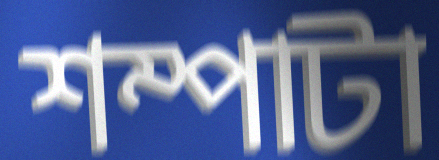
শম্পাটা